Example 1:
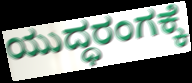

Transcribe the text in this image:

ಯುದ್ಧರಂಗಕ್ಕೆ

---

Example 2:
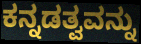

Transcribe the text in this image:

ಕನ್ನಡತ್ವವನ್ನು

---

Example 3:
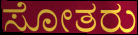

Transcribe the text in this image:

ಸೋತರು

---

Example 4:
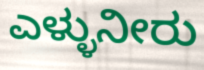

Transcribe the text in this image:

ಎಳ್ಳುನೀರು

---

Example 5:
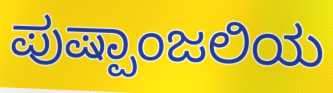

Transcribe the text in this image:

ಪುಷ್ಪಾಂಜಲಿಯ